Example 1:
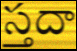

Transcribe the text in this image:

స్తదా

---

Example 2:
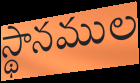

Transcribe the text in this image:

స్థానముల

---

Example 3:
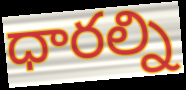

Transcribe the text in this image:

ధారల్ని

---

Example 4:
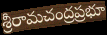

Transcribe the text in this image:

శ్రీరామచంద్రప్రభూ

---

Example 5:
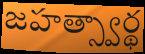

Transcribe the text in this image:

జహత్స్వార్థ